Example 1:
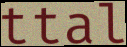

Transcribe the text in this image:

ttal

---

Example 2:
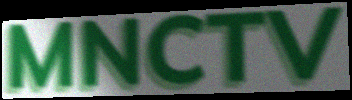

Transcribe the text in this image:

MNCTV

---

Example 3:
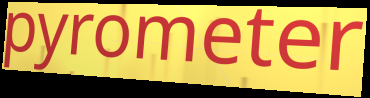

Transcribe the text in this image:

pyrometer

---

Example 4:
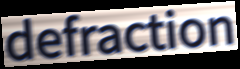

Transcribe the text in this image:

defraction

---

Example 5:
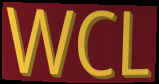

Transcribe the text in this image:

WCL